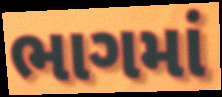
ભાગમાં